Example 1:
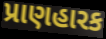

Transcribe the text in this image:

પ્રાણહારક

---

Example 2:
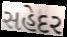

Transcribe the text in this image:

સહેદર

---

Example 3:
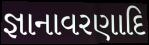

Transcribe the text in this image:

જ્ઞાનાવરણાદિ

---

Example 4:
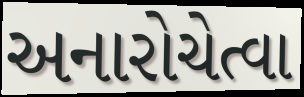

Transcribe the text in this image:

અનારોચેત્વા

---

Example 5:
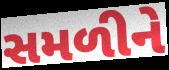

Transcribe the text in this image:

સમળીને